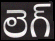
లెగ్